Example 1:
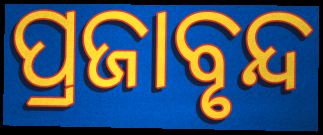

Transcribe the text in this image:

ପ୍ରଜାବୃନ୍ଦ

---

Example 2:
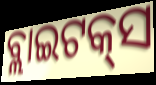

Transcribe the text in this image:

ବ୍ଲାଇଟକ୍‌ସ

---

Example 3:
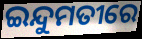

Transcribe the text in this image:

ଇନ୍ଦୁମତୀରେ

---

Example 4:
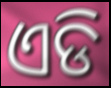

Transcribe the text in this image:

ଏଡି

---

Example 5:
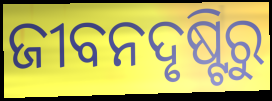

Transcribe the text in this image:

ଜୀବନଦୃଷ୍ଟିରୁ